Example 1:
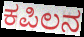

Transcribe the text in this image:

ಕಪಿಲನ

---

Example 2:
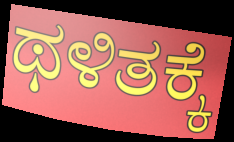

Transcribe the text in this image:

ಥಳಿತಕ್ಕೆ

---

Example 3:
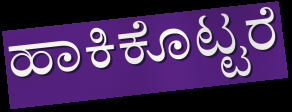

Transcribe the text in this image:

ಹಾಕಿಕೊಟ್ಟರೆ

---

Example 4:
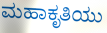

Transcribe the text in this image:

ಮಹಾಕೃತಿಯು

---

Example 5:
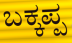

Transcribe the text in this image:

ಬಕ್ಕಪ್ಪ